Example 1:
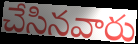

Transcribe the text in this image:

చేసినవారు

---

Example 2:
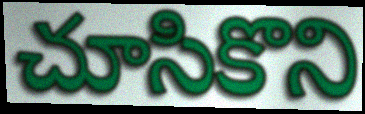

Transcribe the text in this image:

చూసికొని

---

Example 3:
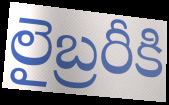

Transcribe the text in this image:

లైబ్రరీకి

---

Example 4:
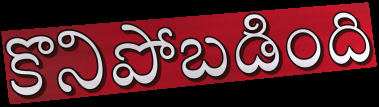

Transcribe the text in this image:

కొనిపోబడింది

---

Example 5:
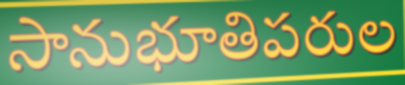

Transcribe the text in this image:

సానుభూతిపరుల